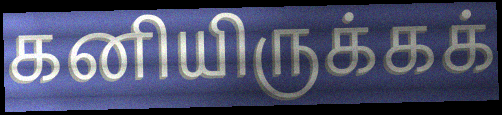
கனியிருக்கக்